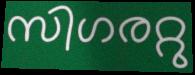
സിഗരറ്റു